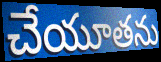
చేయూతను